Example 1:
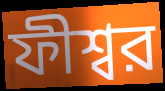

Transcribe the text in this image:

ফীশ্বর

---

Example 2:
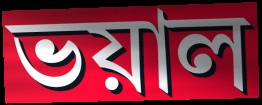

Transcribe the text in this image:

ভয়াল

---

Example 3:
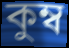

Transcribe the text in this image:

কুম্ব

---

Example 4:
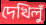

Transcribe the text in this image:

দেখিলুঁ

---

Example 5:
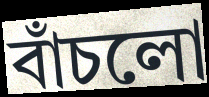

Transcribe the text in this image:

বাঁচলো